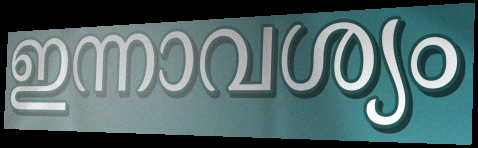
ഇന്നാവശ്യം